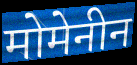
मोमेनीन